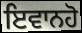
ਇਵਾਨਹੋ